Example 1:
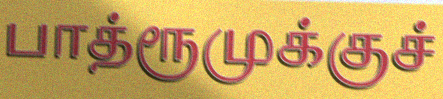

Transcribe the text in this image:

பாத்ரூமுக்குச்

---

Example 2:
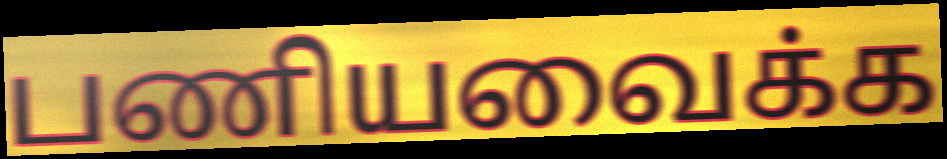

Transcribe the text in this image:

பணியவைக்க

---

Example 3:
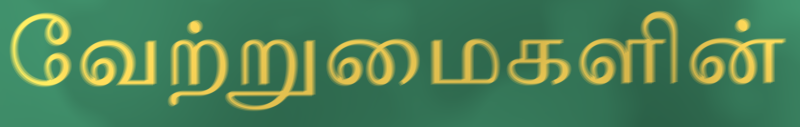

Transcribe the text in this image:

வேற்றுமைகளின்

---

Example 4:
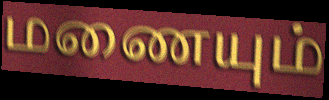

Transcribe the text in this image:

மணையும்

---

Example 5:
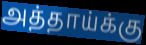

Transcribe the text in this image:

அத்தாய்க்கு